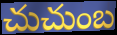
చుచుంబ